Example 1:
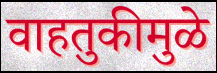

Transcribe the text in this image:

वाहतुकीमुळे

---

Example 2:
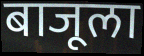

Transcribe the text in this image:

बाजूला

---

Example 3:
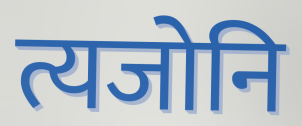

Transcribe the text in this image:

त्यजोनि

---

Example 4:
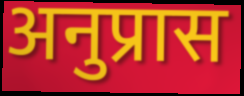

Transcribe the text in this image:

अनुप्रास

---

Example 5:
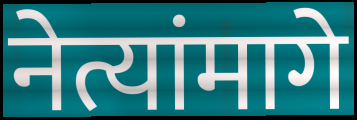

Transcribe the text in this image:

नेत्यांमागे